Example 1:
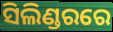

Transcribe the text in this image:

ସିଲିଣ୍ଡରରେ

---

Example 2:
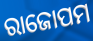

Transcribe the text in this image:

ରାଜୋପମ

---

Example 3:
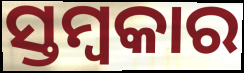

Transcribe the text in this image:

ସ୍ତମ୍ବକାର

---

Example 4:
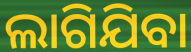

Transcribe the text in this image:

ଲାଗିଯିବା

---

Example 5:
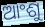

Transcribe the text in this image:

ଆଂଶୁ